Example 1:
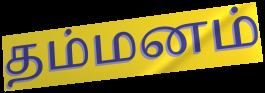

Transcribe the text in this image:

தம்மனம்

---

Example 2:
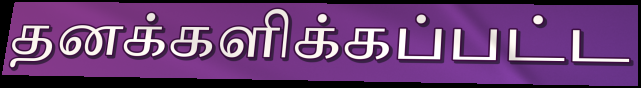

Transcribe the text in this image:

தனக்களிக்கப்பட்ட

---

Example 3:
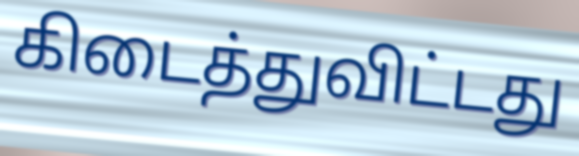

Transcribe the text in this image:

கிடைத்துவிட்டது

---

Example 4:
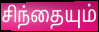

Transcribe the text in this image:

சிந்தையும்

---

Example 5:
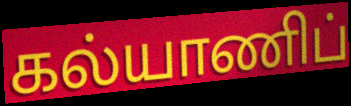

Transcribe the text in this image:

கல்யாணிப்